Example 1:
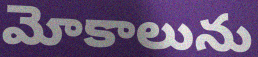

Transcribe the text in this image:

మోకాలును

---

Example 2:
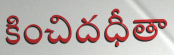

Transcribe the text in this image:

కించిదధీతా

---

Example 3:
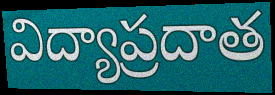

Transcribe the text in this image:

విద్యాప్రదాత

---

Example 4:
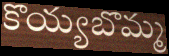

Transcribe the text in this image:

కొయ్యబొమ్మ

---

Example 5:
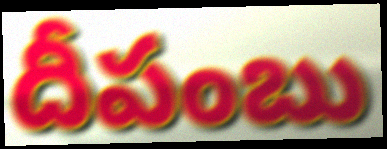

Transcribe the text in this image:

దీపంబు